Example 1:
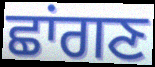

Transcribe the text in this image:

ਛਾਂਗਣ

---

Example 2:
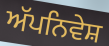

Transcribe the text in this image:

ਅੱਪਨਿਵੇਸ਼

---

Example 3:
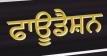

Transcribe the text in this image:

ਫਾਊਡੈਸ਼ਨ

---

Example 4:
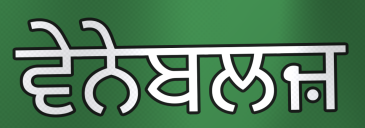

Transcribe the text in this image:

ਵੇਨੇਬਲਜ਼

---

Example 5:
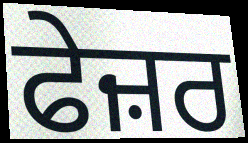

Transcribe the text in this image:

ਫੇਜ਼ਰ